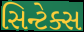
સિન્ટેક્સ